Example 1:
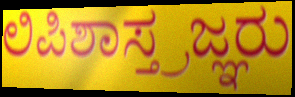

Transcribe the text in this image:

ಲಿಪಿಶಾಸ್ತ್ರಜ್ಞರು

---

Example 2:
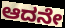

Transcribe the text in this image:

ಆದನೇ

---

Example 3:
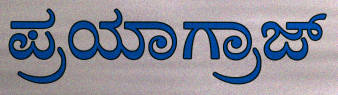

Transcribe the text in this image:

ಪ್ರಯಾಗ್ರಾಜ್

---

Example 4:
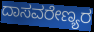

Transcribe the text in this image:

ದಾಸವರೇಣ್ಯರ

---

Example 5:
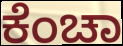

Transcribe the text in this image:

ಕೆಂಚಾ